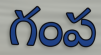
గంప